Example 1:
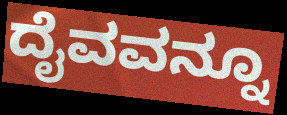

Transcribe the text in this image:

ದೈವವನ್ನೂ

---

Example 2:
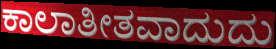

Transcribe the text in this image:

ಕಾಲಾತೀತವಾದುದು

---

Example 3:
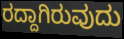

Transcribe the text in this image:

ರದ್ದಾಗಿರುವುದು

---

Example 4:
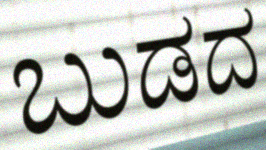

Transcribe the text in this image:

ಬುಡದ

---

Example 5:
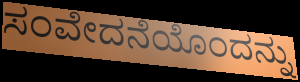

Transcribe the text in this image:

ಸಂವೇದನೆಯೊಂದನ್ನು